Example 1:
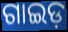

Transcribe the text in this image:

ଗାଇଡ଼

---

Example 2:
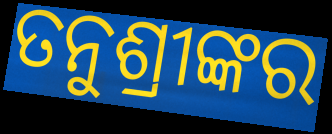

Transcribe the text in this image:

ତନୁଶ୍ରୀଙ୍କର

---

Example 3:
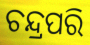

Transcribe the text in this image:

ଚନ୍ଦ୍ରପରି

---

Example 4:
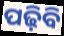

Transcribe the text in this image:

ପଢ଼ିବି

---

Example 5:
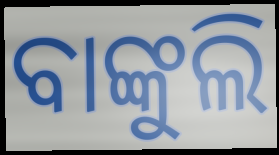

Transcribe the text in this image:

ବାଙ୍କୁଲି